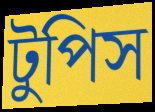
টুপিস